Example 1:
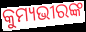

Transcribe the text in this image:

କୁମ୍ୟଭୀରଙ୍କ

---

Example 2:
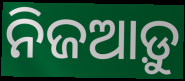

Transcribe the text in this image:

ନିଜଆଡ଼ୁ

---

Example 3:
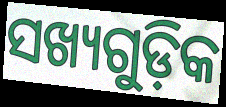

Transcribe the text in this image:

ସଖ୍ୟଗୁଡ଼ିକ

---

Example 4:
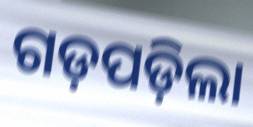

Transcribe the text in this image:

ଗଡ଼ପଡ଼ିଲା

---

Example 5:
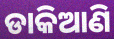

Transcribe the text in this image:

ଡାକିଆଣି